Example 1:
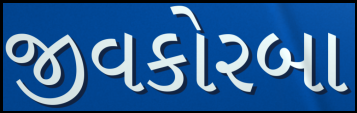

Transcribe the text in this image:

જીવકોરબા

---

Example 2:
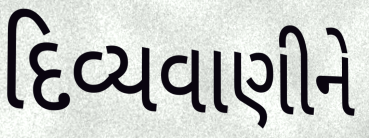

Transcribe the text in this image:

દિવ્યવાણીને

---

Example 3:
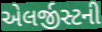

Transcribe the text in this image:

એલર્જીસ્ટની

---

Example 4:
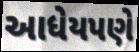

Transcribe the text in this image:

આધેયપણે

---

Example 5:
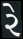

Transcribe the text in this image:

રે